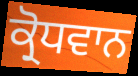
ਕ੍ਰੋਧਵਾਨ